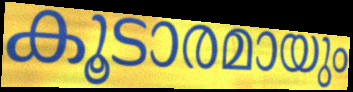
കൂടാരമായും